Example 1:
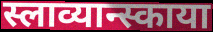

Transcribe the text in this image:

स्लाव्यान्स्काया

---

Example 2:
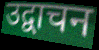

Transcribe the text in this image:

उद्वाचन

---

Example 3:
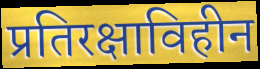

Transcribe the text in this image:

प्रतिरक्षाविहीन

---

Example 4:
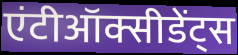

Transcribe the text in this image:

एंटीऑक्सीडेंट्स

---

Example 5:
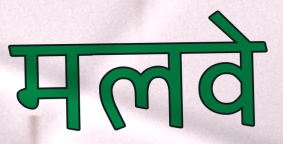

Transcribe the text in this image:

मलवे